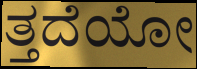
ತ್ತದೆಯೋ